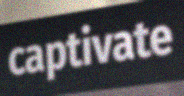
captivate